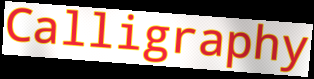
Calligraphy